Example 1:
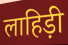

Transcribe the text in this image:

लाहिड़ी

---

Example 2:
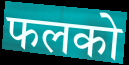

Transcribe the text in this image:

फलको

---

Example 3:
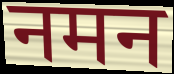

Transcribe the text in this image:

नमन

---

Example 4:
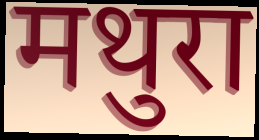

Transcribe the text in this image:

मथुरा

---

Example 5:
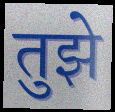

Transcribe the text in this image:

तुझे